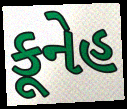
કૂનેહ